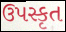
ઉપસ્કૃત